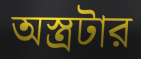
অস্ত্রটার